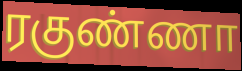
ரகுண்ணா